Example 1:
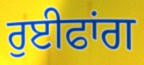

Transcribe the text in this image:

ਰੁਈਫਾਂਗ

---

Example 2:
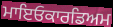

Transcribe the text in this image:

ਮਾਇਓਕਾਰਡਿਅਮ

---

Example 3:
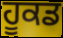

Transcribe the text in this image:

ਹੂਕਡ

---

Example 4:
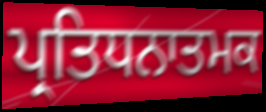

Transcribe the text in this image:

ਪ੍ਰਤਿਧਨਾਤਮਕ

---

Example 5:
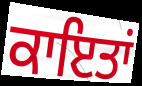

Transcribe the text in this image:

ਕਾਇਤਾਂ